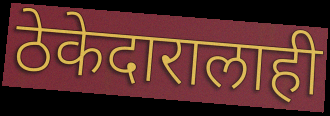
ठेकेदारालाही